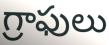
గ్రాఫులు